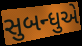
સુબન્ધુએ